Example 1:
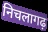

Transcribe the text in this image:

निचलागढ़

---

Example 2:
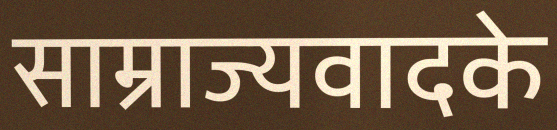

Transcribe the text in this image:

साम्राज्यवादके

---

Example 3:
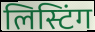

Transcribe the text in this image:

लिस्‍टिंग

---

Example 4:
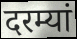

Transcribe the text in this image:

दरम्यां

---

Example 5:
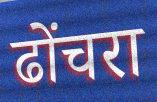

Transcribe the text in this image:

ढोंचरा